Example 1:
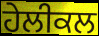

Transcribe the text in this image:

ਹੇਲੀਕਲ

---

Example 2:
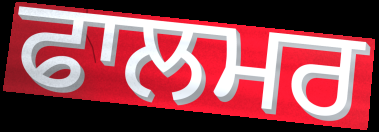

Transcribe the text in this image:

ਫਾਲਮਰ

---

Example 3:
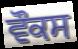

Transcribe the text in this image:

ਵੌਕਸ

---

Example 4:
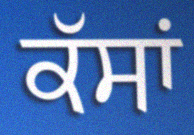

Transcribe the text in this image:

ਕੱਸਾਂ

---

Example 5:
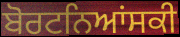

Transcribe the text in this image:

ਬੋਰਟਨਿਆਂਸਕੀ